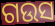
ଗଉସ